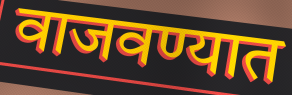
वाजवण्यात